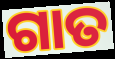
ଗାତ